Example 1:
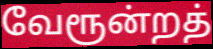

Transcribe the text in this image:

வேரூன்றத்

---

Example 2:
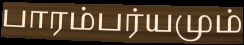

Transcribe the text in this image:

பாரம்பர்யமும்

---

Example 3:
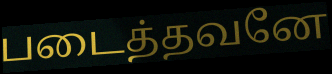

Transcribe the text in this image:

படைத்தவனே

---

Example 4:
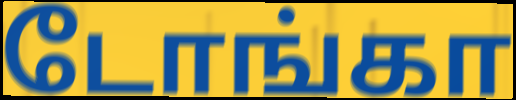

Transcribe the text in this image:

டோங்கா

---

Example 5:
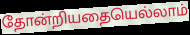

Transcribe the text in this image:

தோன்றியதையெல்லாம்